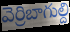
వెర్రిబాగుల్ది